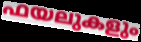
ഫയലുകളും